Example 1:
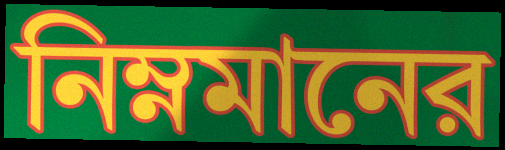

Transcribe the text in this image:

নিম্নমানের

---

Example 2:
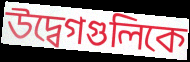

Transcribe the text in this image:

উদ্বেগগুলিকে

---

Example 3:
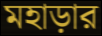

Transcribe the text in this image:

মহাড়ার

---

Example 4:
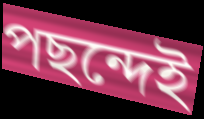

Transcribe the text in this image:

পছন্দেই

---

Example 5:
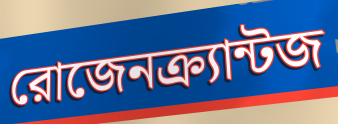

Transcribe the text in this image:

রোজেনক্র্যান্টজ